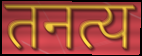
तनत्य